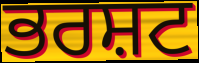
ਭਰਸ਼ਟ